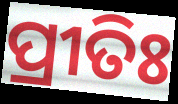
ପ୍ରୀତିଃ